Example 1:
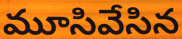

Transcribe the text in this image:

మూసివేసిన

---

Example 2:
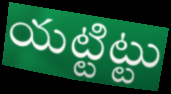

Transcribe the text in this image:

యట్టిట్టు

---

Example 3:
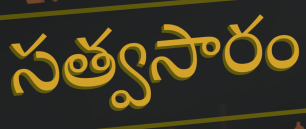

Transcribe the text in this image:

సత్వసారం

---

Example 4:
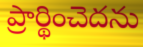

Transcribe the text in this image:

ప్రార్థించెదను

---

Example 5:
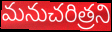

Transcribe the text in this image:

మనుచరిత్రని